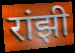
रांझी